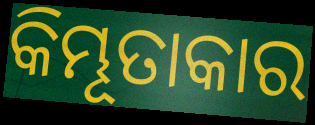
କିମ୍ଭୂତାକାର